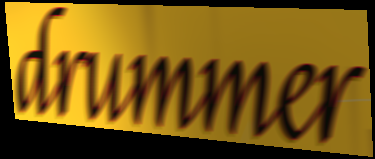
drummer